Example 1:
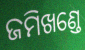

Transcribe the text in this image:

ଜମିଖଣ୍ଡେ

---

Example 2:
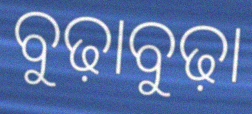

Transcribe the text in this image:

ବୁଢ଼ାବୁଢ଼ା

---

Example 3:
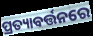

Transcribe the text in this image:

ପ୍ରତ୍ୟାବର୍ତ୍ତନରେ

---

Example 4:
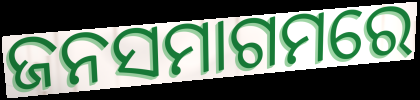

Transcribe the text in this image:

ଜନସମାଗମରେ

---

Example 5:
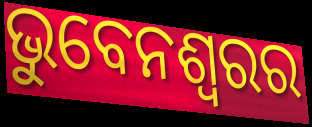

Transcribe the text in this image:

ଭୁବେନଶ୍ବରର